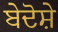
ਬੇਦੋਸ਼ੇ